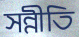
সন্নীতি